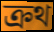
ক্রথ